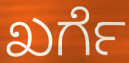
ಖರ್ಗೆ